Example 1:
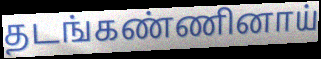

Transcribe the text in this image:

தடங்கண்ணினாய்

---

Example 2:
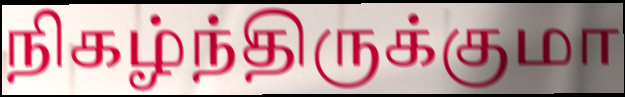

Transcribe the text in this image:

நிகழ்ந்திருக்குமா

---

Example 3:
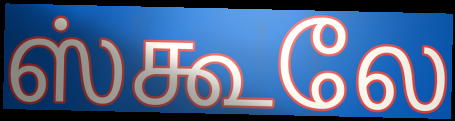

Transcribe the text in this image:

ஸ்கூலே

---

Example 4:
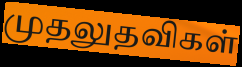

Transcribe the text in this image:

முதலுதவிகள்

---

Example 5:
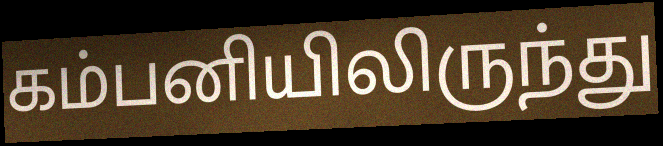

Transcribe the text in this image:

கம்பனியிலிருந்து